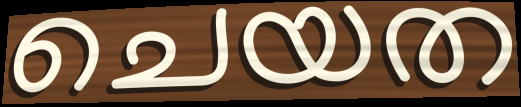
ചെയത